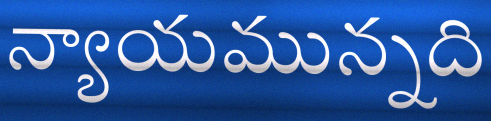
న్యాయమున్నది